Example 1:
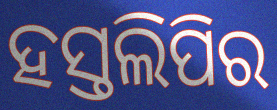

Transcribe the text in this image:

ହସ୍ତଲିପିର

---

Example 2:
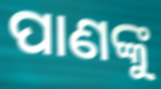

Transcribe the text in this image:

ପାଣଙ୍କୁ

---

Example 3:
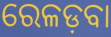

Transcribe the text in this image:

ରେଳଡ଼ବା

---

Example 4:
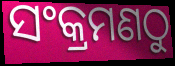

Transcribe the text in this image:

ସଂକ୍ରମଣଠୁ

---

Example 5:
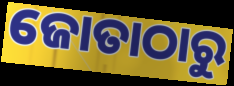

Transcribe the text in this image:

ଜୋତାଠାରୁ